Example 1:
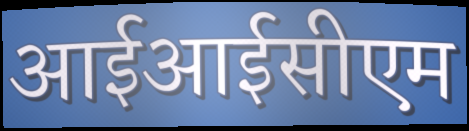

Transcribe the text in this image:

आईआईसीएम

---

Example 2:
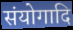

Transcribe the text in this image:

संयोगादि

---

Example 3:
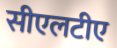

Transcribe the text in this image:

सीएलटीए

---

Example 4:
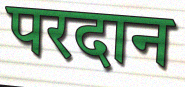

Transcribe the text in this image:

परदान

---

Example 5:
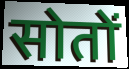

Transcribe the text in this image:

सोतों